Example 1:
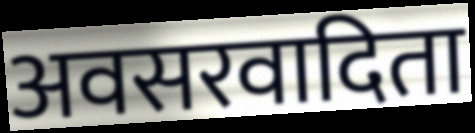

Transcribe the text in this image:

अवसरवादिता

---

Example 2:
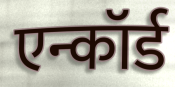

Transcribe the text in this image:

एन्कॉर्ड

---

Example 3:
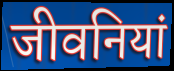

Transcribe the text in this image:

जीवनियां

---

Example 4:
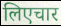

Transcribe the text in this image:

लिएचार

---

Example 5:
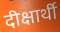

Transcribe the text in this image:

दीक्षार्थी